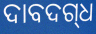
ଦାବଦଗ୍‍ଧ